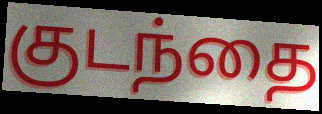
குடந்தை